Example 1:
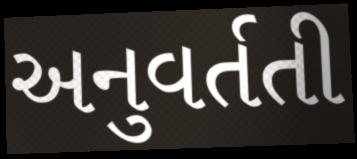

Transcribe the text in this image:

અનુવર્તતી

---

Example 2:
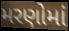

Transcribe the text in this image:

મરણોમાં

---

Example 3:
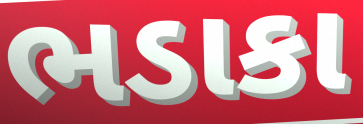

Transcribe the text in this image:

ભડાકા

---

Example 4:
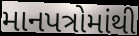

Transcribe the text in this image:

માનપત્રોમાંથી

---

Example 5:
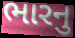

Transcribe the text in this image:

ભારનુ